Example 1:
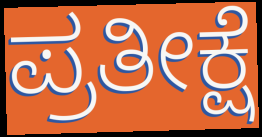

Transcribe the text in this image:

ಪ್ರತೀಕ್ಷೆ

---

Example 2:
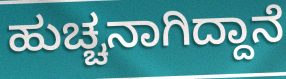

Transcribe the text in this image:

ಹುಚ್ಚನಾಗಿದ್ದಾನೆ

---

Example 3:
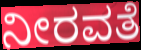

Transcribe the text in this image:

ನೀರವತೆ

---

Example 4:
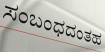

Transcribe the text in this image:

ಸಂಬಂಧದಂತಹ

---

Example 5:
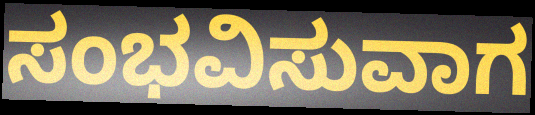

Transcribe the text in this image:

ಸಂಭವಿಸುವಾಗ